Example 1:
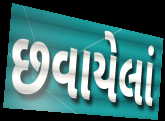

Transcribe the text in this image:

છવાયેલાં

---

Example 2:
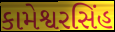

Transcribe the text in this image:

કામેશ્વરસિંહ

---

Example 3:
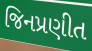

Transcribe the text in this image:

જિનપ્રણીત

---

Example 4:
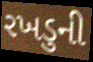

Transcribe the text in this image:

રખડુની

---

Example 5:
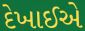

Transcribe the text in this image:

દેખાઈએ